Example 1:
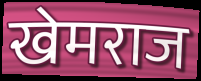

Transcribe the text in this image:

खेमराज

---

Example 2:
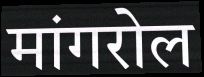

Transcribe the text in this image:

मांगरोल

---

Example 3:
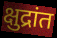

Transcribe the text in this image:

क्षुद्रांत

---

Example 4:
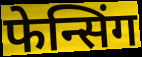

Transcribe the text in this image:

फेन्सिंग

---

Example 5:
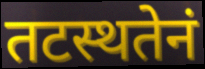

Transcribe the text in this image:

तटस्थतेनं